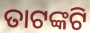
ତାଟଙ୍କଟି